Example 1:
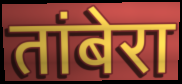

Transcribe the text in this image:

तांबेरा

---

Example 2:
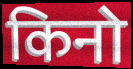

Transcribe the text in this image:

किनो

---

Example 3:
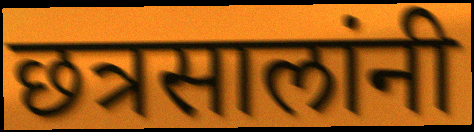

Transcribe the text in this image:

छत्रसालांनी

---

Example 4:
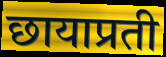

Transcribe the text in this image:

छायाप्रती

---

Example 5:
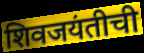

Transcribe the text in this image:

शिवजयंतीची